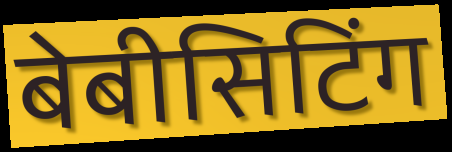
बेबीसिटिंग